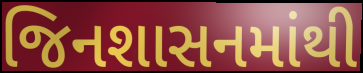
જિનશાસનમાંથી